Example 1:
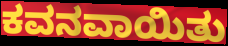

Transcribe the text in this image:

ಕವನವಾಯಿತು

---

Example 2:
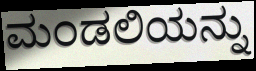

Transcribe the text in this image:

ಮಂಡಲಿಯನ್ನು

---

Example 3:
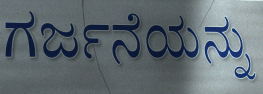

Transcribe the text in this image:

ಗರ್ಜನೆಯನ್ನು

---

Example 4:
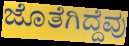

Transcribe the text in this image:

ಜೊತೆಗಿದ್ದೆವು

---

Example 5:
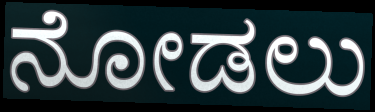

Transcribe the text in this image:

ನೋಡಲು